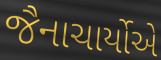
જૈનાચાર્યોએ